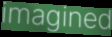
imagined